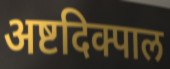
अष्टदिक्पाल